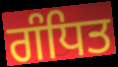
ਗੰਧਿਤ